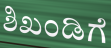
ಶಿಖಂಡಿಗೆ